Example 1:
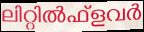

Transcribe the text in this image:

ലിറ്റിൽഫ്ളവർ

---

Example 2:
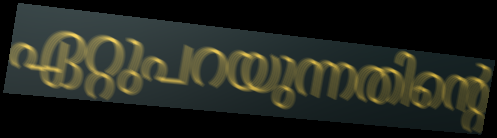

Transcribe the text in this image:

ഏറ്റുപറയുന്നതിന്റെ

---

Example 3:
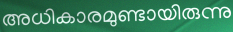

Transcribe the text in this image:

അധികാരമുണ്ടായിരുന്നു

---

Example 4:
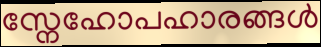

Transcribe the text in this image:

സ്നേഹോപഹാരങ്ങൾ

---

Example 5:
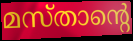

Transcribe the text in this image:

മസ്താന്റെ